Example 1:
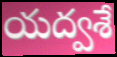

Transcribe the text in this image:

యద్వశే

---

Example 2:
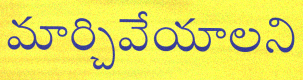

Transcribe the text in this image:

మార్చివేయాలని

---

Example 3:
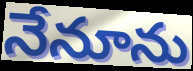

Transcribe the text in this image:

నేనూను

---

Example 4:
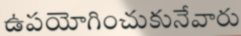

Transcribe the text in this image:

ఉపయోగించుకునేవారు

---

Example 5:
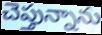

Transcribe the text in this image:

చెప్తున్నాను